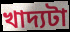
খাদ্যটা